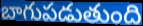
బాగుపడుతుంది